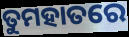
ତୁମହାତରେ